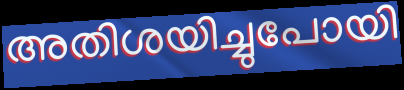
അതിശയിച്ചുപോയി